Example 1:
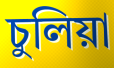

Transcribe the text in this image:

চুলিয়া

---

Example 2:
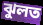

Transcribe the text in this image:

ঝুলত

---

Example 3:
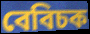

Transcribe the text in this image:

বেবিচক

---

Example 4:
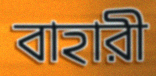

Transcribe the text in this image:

বাহারী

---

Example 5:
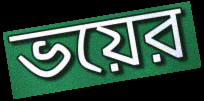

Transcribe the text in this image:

ভয়ের